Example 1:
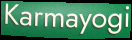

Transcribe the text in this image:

Karmayogi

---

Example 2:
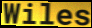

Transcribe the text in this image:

Wiles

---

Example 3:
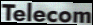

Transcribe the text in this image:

Telecom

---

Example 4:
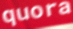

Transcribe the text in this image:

quora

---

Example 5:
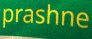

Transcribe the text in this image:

prashne